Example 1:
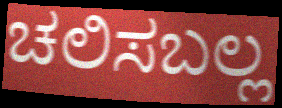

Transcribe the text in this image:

ಚಲಿಸಬಲ್ಲ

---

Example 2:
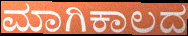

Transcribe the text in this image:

ಮಾಗಿಕಾಲದ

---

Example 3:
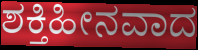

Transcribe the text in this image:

ಶಕ್ತಿಹೀನವಾದ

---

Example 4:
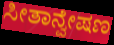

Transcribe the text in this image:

ಸೀತಾನ್ವೇಷಣ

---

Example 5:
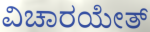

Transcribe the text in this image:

ವಿಚಾರಯೇತ್